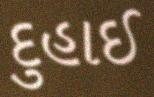
દુહાઈ